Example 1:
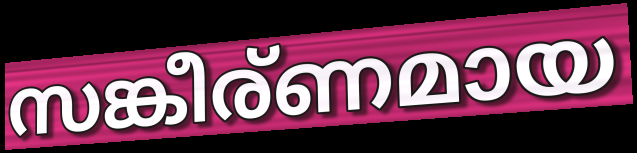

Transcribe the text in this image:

സങ്കീര്ണമായ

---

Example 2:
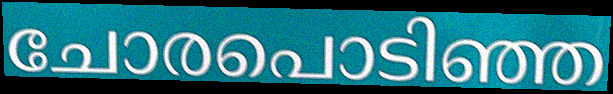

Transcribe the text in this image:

ചോരപൊടിഞ്ഞ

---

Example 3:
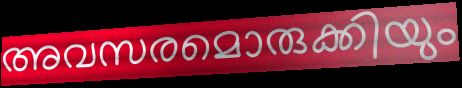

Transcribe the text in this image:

അവസരമൊരുക്കിയും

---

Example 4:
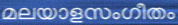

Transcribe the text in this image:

മലയാളസംഗീതം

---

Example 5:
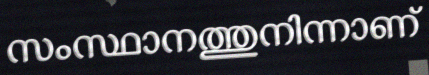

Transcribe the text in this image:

സംസ്ഥാനത്തുനിന്നാണ്